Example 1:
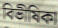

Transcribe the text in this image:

বিভীষিকা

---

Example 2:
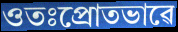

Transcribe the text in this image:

ওতঃপ্ৰোতভাৱে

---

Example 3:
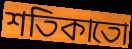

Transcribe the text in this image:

শতিকাতো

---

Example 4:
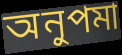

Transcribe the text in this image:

অনুপমা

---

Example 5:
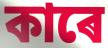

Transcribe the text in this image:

কাৰে